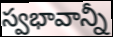
స్వభావాన్నీ